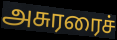
அசுரரைச்